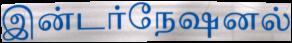
இன்டர்நேஷனல்